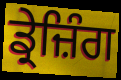
ਡ੍ਰੇਜ਼ਿੰਗ